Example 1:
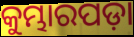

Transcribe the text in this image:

କୁମ୍ଭାରପଡ଼ା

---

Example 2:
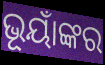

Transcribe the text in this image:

ଭୂୟାଁଙ୍କର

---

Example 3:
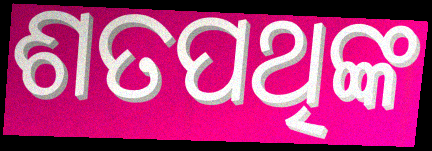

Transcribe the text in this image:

ଶତପଥିଙ୍କ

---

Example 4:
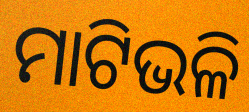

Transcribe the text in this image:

ମାଟିଭଳି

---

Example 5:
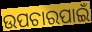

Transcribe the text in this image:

ଉପଚାରପାଇଁ